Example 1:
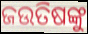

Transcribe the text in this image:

ଜଉତିଷଙ୍କୁ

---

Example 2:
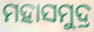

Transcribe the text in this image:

ମହାସମୁଦ୍ର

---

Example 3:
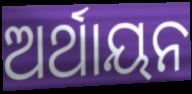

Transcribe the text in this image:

ଅର୍ଥାୟନ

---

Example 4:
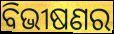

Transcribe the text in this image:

ବିଭୀଷଣର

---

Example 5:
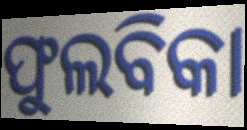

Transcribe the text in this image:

ଫୁଲବିକା